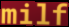
milf